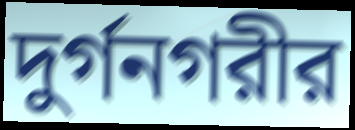
দুর্গনগরীর